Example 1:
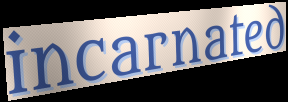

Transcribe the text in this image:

incarnated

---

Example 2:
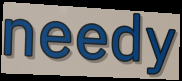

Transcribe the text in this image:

needy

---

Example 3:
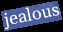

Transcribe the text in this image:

jealous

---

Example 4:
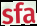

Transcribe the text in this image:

sfa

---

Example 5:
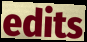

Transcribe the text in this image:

edits